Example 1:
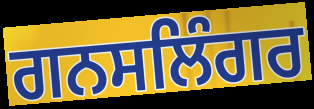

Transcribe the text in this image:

ਗਨਸਲਿੰਗਰ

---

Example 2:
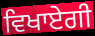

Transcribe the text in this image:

ਵਿਖਾਏਗੀ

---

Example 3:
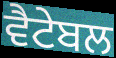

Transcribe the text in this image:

ਵੈਟੇਬਲ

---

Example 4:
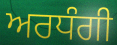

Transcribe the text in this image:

ਅਰਧੰਗੀ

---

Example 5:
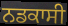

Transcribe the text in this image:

ਨਡਕਾਸੀ